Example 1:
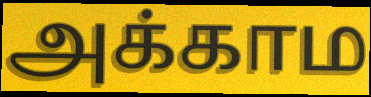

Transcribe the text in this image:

அக்காம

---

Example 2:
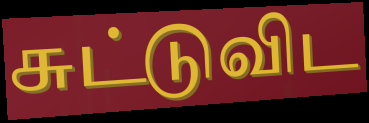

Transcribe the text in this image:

சுட்டுவிட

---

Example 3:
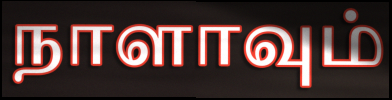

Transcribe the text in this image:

நாளாவும்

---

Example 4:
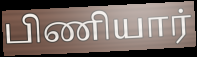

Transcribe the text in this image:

பிணியார்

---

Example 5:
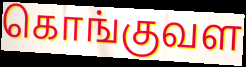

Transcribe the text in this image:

கொங்குவள